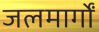
जलमार्गों